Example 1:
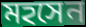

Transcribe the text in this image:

মহসেন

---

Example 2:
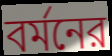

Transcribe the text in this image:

বর্মনের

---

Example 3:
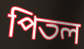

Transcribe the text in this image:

পিতল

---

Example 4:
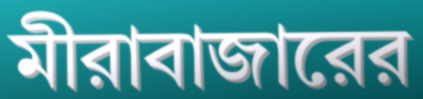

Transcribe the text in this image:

মীরাবাজারের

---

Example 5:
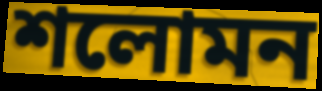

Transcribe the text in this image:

শলোমন